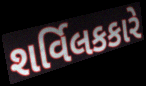
શર્વિલકકારે